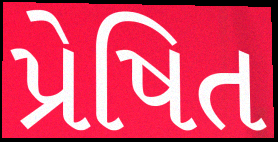
પ્રેષિત